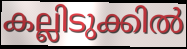
കല്ലിടുക്കിൽ